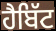
ਹੈਬਿੱਟ